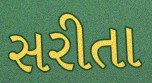
સરીતા